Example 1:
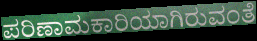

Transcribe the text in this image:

ಪರಿಣಾಮಕಾರಿಯಾಗಿರುವಂತೆ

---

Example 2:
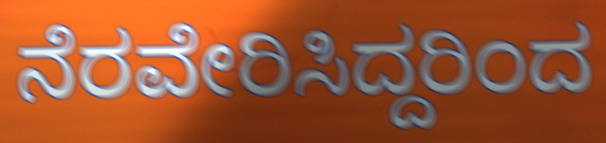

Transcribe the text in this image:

ನೆರವೇರಿಸಿದ್ದರಿಂದ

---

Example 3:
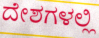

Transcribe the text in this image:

ದೇಶಗಳಲ್ಲಿ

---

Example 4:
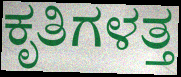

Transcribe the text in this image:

ಕೃತಿಗಳತ್ತ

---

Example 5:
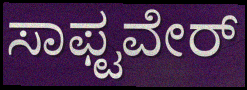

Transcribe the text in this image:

ಸಾಫ್ಟವೇರ್